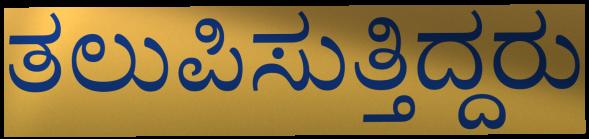
ತಲುಪಿಸುತ್ತಿದ್ದರು